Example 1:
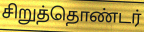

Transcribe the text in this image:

சிறுத்தொண்டர்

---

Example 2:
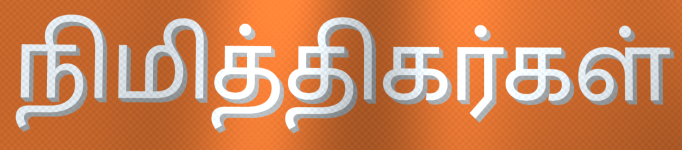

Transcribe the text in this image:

நிமித்திகர்கள்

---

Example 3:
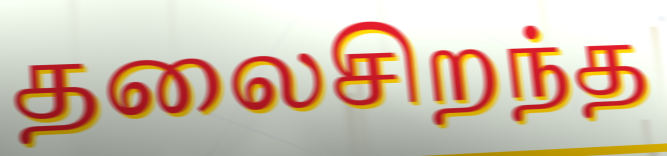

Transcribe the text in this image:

தலைசிறந்த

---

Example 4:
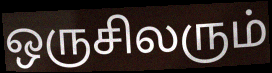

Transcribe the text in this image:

ஒருசிலரும்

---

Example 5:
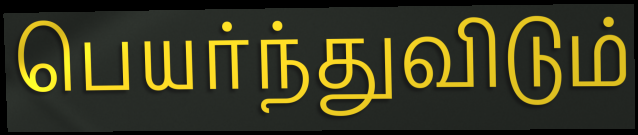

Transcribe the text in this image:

பெயர்ந்துவிடும்